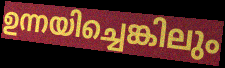
ഉന്നയിച്ചെങ്കിലും